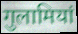
गुलामियां